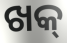
ଖକ୍